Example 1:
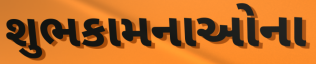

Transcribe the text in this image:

શુભકામનાઓના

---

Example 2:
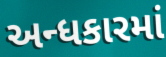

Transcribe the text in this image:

અન્ધકારમાં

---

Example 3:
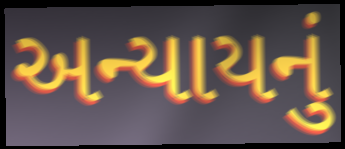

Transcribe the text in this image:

અન્યાયનું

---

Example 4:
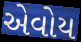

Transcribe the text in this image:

એવોય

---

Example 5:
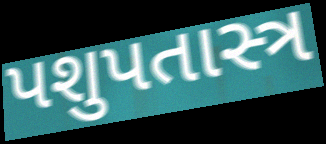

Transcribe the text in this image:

પશુપતાસ્ત્ર